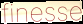
finesse